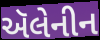
ઍલેનીન